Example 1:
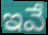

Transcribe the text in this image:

ఇవే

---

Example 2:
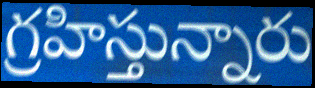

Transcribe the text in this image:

గ్రహిస్తున్నారు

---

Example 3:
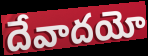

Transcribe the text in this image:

దేవాదయో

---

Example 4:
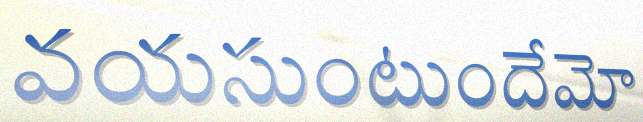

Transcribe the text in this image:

వయసుంటుందేమో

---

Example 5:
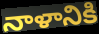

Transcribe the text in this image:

నాళానికి